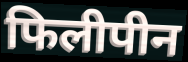
फिलीपीन